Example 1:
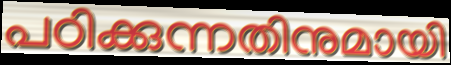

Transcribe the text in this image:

പഠിക്കുന്നതിനുമായി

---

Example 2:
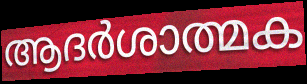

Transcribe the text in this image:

ആദർശാത്മക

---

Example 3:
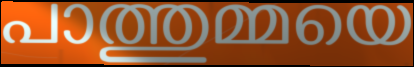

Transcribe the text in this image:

പാത്തുമ്മയെ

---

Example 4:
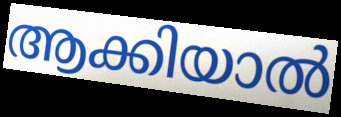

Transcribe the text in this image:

ആക്കിയാൽ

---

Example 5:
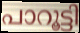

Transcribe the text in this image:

പാറൂട്ടി